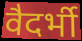
वैदर्भी